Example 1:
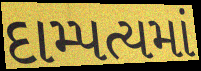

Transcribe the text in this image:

દામ્પત્યમાં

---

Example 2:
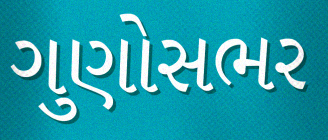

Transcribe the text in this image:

ગુણોસભર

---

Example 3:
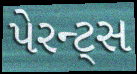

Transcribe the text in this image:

પેરન્ટ્સ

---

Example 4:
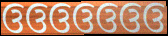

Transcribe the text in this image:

ઉઉઉઉઉઉઉ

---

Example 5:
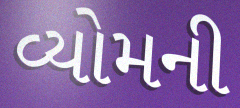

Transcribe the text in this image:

વ્યોમની